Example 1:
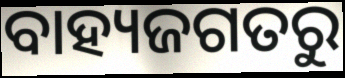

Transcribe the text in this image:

ବାହ୍ୟଜଗତରୁ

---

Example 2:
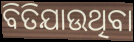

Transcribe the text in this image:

ବିତିଯାଉଥିବା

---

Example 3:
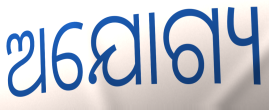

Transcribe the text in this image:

ଅଯୋଗ୍ୟ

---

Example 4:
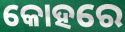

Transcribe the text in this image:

କୋହରେ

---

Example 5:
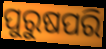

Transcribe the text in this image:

ପୁରୁଷପରି